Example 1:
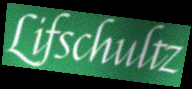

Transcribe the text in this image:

Lifschultz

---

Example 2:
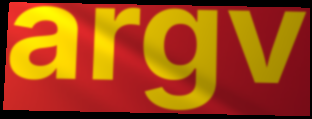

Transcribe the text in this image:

argv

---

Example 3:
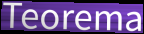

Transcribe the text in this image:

Teorema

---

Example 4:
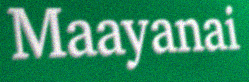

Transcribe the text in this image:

Maayanai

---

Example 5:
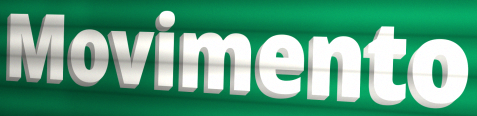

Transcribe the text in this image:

Movimento